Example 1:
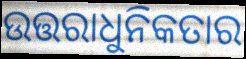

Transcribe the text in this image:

ଉତ୍ତରାଧୁନିକତାର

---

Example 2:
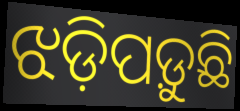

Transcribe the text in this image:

ଝଡ଼ିପଡ଼ୁଛି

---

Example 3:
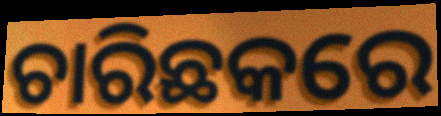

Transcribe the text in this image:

ଚାରିଛକରେ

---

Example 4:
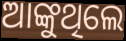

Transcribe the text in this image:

ଆଙ୍କୁଥିଲେ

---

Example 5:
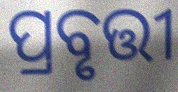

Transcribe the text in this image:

ପ୍ରବୃତ୍ତୀ